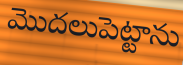
మొదలుపెట్టాను